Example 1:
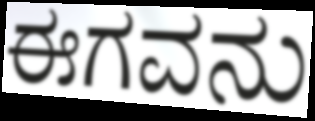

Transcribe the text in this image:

ಈಗವನು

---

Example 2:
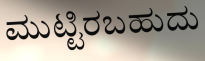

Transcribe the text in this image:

ಮುಟ್ಟಿರಬಹುದು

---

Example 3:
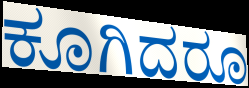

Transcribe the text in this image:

ಕೂಗಿದರೂ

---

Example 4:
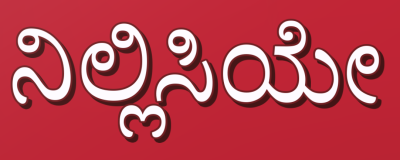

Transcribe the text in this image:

ನಿಲ್ಲಿಸಿಯೇ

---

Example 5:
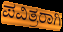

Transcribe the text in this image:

ಪವಿತ್ರರಾಗಿ